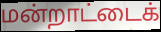
மன்றாட்டைக்